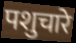
पशुचारे